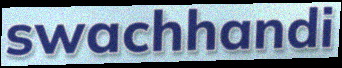
swachhandi